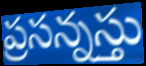
ప్రసన్నస్తు